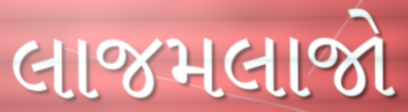
લાજમલાજો